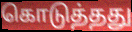
கொடுத்தது